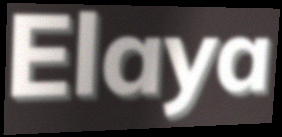
Elaya